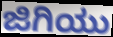
ಜಿಗಿಯು